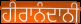
ਹੀਰਾਨੰਦਾਨੀ